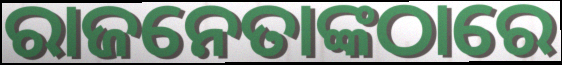
ରାଜନେତାଙ୍କଠାରେ